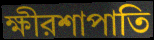
ক্ষীরশাপাতি